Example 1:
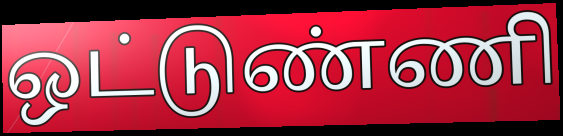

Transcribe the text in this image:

ஒட்டுண்ணி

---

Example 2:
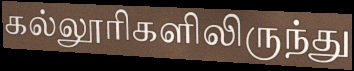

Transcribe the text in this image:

கல்லூரிகளிலிருந்து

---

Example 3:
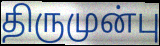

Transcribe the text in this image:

திருமுன்பு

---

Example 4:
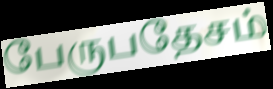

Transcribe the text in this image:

பேருபதேசம்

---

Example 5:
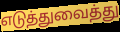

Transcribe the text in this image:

எடுத்துவைத்து